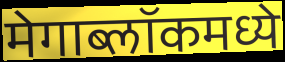
मेगाब्लॉकमध्ये